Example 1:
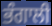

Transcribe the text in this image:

ਭੰਗਾਲੀ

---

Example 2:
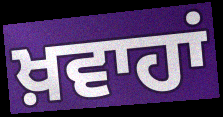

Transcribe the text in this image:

ਖ਼ਵਾਹਾਂ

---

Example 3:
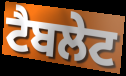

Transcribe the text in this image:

ਟੈਬਲੇਟ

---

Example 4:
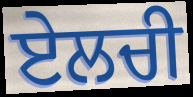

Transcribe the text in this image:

ਏਲਚੀ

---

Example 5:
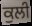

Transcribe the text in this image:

ਕੁਲੀ